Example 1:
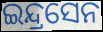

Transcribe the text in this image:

ଇନ୍ଦ୍ରସେନ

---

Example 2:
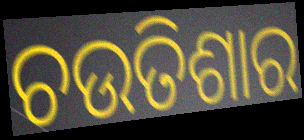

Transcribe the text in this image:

ଚଉତିଶାର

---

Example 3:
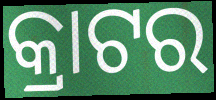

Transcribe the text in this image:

କ୍ରାଟର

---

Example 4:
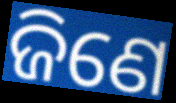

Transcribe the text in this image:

ଜିଣେ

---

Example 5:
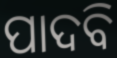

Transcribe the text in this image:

ପାଦବି